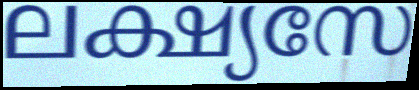
ലക്ഷ്യസേ